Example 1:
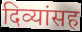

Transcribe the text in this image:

दिव्यांसह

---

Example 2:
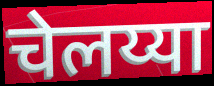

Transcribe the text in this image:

चेलय्या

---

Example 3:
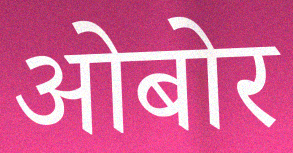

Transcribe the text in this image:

ओबोर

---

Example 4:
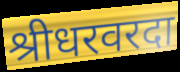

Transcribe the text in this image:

श्रीधरवरदा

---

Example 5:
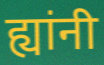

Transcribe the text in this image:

ह्यांनी